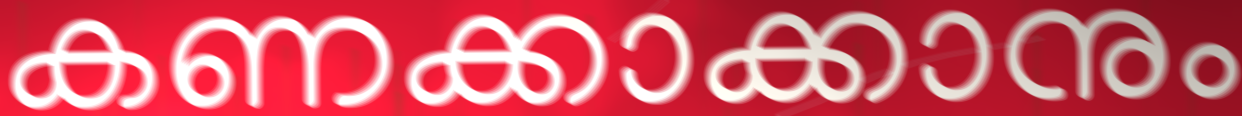
കണക്കാക്കാനും